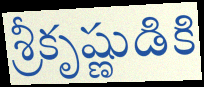
శ్రీకృష్ణుడికి